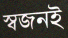
স্বজনই